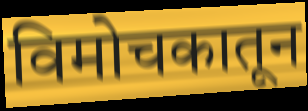
विमोचकातून